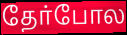
தேர்போல